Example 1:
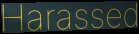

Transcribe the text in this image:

Harassed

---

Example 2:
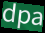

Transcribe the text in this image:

dpa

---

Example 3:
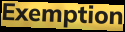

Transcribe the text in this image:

Exemption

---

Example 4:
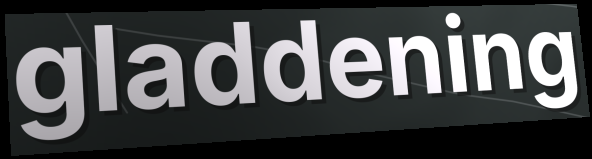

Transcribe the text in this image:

gladdening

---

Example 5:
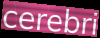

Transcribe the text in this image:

cerebri